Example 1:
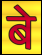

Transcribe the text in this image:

बे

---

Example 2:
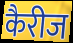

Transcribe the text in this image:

कैरीज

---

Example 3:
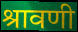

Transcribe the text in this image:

श्रावणी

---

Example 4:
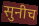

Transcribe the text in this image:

सुनीच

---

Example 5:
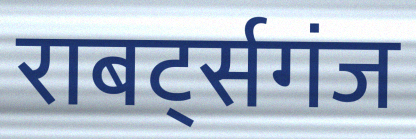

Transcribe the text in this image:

राबर्ट्सगंज